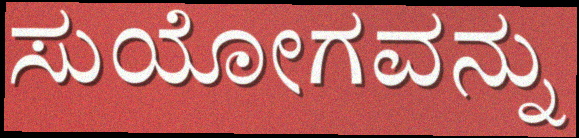
ಸುಯೋಗವನ್ನು